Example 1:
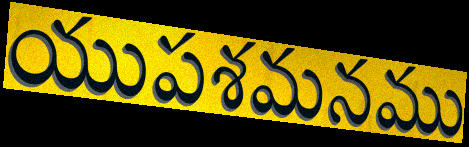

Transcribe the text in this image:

యుపశమనము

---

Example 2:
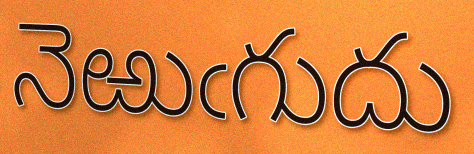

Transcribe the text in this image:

నెఱుఁగుదు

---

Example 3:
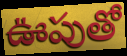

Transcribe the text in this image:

ఊపుతో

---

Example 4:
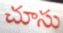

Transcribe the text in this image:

చూసు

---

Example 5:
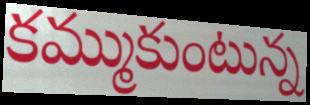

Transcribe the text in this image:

కమ్ముకుంటున్న